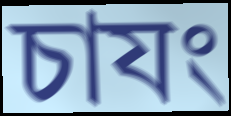
চাযং